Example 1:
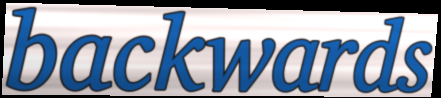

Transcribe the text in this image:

backwards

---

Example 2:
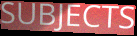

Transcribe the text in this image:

SUBJECTS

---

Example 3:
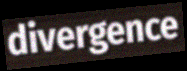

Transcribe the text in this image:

divergence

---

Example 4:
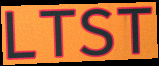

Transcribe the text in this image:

LTST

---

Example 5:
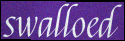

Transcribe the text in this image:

swalloed